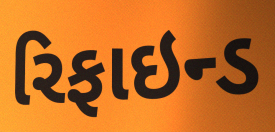
રિફાઇન્ડ